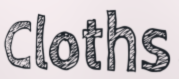
Cloths